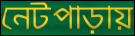
নেটপাড়ায়